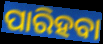
ପାରିହବା